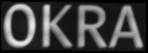
OKRA